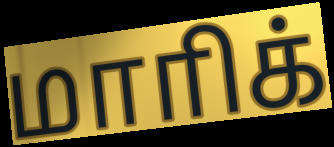
மாரிக்